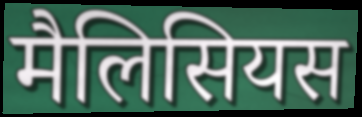
मैलिसियस